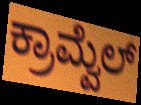
ಕ್ರಾಮ್ವೆಲ್